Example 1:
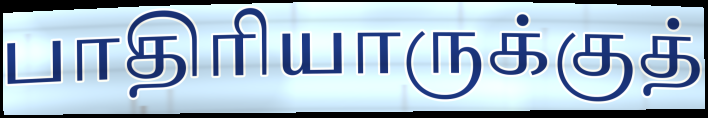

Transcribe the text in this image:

பாதிரியாருக்குத்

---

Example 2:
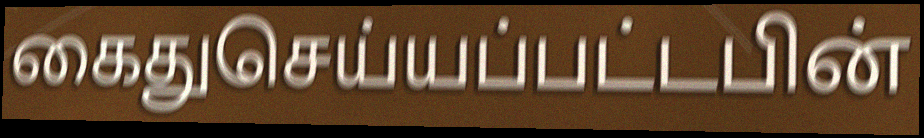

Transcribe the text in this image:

கைதுசெய்யப்பட்டபின்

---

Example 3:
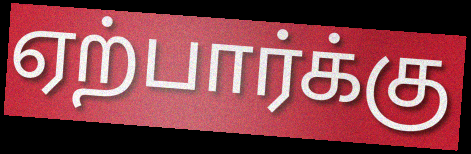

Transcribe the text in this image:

ஏற்பார்க்கு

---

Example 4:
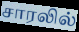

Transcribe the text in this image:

சாரலில்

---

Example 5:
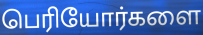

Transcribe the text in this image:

பெரியோர்களை